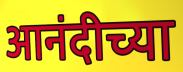
आनंदीच्या